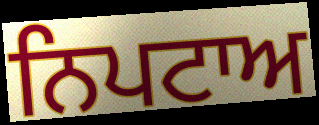
ਨਿਪਟਾਅ